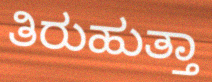
ತಿರುಹುತ್ತಾ